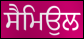
ਸੈਮਿਉਲ